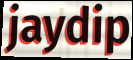
jaydip